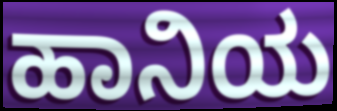
ಹಾನಿಯ